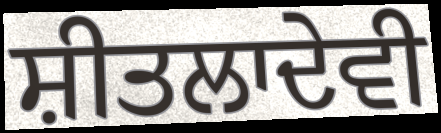
ਸ਼ੀਤਲਾਦੇਵੀ